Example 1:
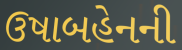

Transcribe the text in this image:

ઉષાબહેનની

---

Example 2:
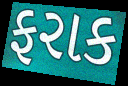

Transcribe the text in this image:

ફરાક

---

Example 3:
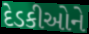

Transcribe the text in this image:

દેડકીઓને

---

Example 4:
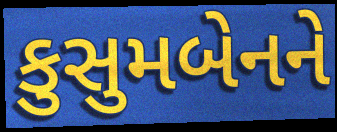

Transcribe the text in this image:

કુસુમબેનને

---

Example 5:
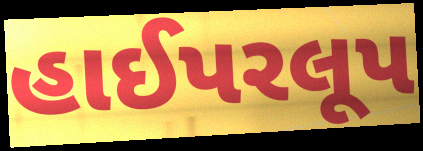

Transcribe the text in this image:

હાઈપરલૂપ